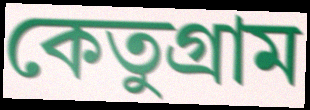
কেতুগ্রাম